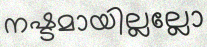
നഷ്ടമായില്ലല്ലോ